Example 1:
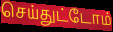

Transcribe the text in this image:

செய்துட்டோம்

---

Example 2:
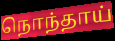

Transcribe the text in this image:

நொந்தாய்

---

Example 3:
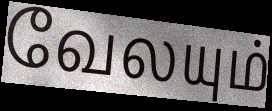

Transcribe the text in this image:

வேலயும்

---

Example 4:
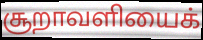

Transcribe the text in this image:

சூறாவளியைக்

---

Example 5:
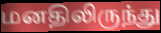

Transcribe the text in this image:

மனதிலிருந்து